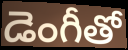
డెంగీతో